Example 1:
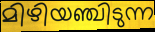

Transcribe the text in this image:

മിഴിയഞ്ചിടുന്ന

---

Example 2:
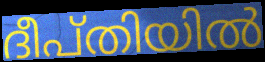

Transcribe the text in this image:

ദീപ്തിയിൽ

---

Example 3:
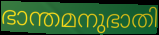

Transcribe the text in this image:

ഭാന്തമനുഭാതി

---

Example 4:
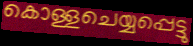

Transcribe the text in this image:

കൊള്ളചെയ്യപ്പെട്ടു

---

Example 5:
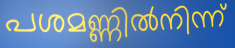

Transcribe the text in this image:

പശമണ്ണിൽനിന്ന്